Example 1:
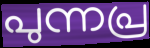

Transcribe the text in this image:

പുന്നപ്ര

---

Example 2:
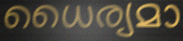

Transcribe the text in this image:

ധൈര്യമാ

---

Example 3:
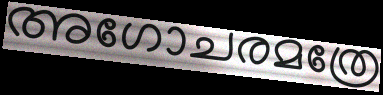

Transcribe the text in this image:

അഗോചരമത്രേ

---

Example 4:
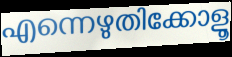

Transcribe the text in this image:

എന്നെഴുതിക്കോളൂ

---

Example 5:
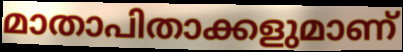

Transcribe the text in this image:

മാതാപിതാക്കളുമാണ്